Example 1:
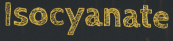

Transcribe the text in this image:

Isocyanate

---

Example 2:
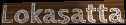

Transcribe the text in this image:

Lokasatta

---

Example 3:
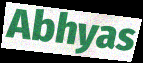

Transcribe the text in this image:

Abhyas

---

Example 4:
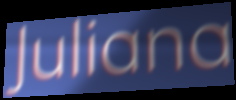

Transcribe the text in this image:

Juliana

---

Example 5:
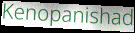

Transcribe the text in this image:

Kenopanishad